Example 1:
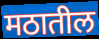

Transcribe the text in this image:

मठातील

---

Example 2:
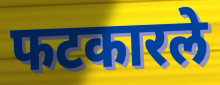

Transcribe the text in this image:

फटकारले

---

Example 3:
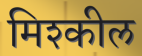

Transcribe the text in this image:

मिश्कील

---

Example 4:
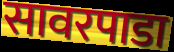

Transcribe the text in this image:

सावरपाडा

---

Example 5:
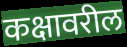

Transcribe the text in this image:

कक्षावरील